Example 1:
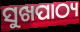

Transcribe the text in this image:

ସୁଖପାଠ୍ୟ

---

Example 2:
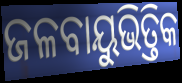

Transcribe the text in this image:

ଜଳବାୟୁଭିତ୍ତିକ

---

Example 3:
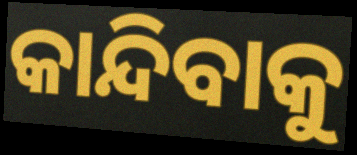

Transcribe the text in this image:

କାନ୍ଦିବାକୁ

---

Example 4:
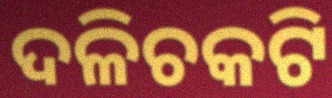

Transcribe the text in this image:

ଦଳିଚକଟି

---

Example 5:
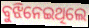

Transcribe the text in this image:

ବୁଝିନେଇଥିଲେ